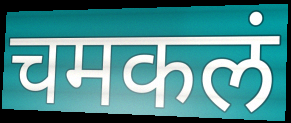
चमकलं